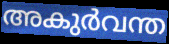
അകുർവന്ത